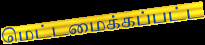
மெட்டமைக்கப்பட்ட